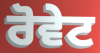
ਰੋਵੇਟ